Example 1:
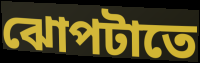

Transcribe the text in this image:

ঝোপটাতে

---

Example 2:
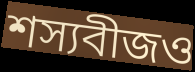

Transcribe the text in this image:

শস্যবীজও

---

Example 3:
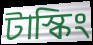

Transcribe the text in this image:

টাস্কিং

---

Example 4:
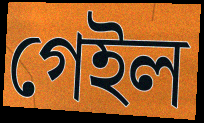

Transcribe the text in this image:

গেইল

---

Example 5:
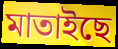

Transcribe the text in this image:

মাতাইছে